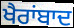
ਖੈਰਾਂਬਾਦ